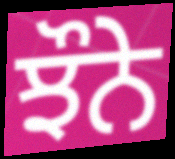
ਝੌਨੇ